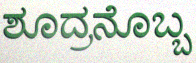
ಶೂದ್ರನೊಬ್ಬ